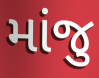
માંજુ